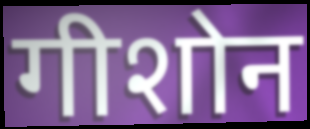
गीशोन